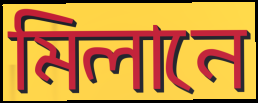
মিলানে